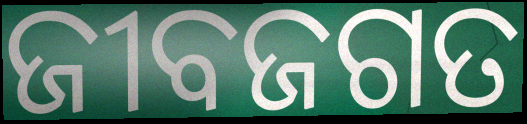
ଜୀବଜଗତ